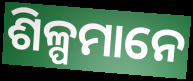
ଶିଳ୍ପମାନେ